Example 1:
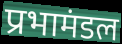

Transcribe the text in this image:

प्रभामंडल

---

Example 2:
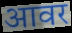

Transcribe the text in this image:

आवर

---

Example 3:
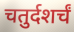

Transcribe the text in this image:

चतुर्दशर्चं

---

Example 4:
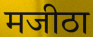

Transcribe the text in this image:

मजीठा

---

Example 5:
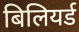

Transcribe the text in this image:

बिलियर्ड